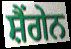
ਸ਼ੈਂਗੇਨ